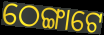
ଠେଙ୍ଗାଟେ